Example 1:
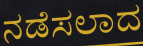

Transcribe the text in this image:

ನಡೆಸಲಾದ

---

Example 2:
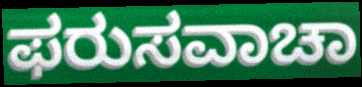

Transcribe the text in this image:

ಫರುಸವಾಚಾ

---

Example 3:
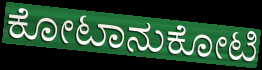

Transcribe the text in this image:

ಕೋಟಾನುಕೋಟಿ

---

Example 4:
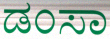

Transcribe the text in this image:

ಡಂಸಾ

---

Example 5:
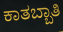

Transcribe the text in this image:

ಕಾತಬ್ಬಾತಿ